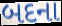
બદના